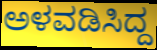
ಅಳವಡಿಸಿದ್ದ